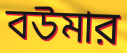
বউমার